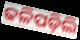
ଢଳିପଡ଼ିଲି